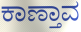
ಕಾಣ್ತಾವ